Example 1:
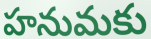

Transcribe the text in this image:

హనుమకు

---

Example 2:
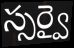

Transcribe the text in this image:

స్సర్వై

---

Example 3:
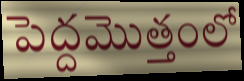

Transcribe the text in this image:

పెద్దమొత్తంలో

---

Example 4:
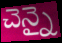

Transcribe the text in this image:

చెన్నై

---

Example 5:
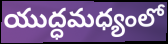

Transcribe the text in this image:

యుద్ధమధ్యంలో